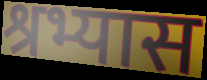
श्रभ्यास